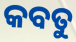
କବତୁ